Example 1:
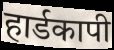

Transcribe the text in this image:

हार्डकापी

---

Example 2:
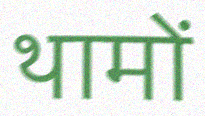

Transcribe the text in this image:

थामों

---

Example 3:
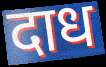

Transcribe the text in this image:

दाध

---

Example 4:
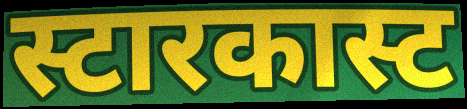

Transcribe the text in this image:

स्टारकास्ट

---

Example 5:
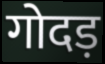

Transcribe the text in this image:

गोदड़